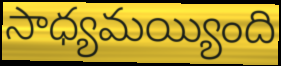
సాధ్యమయ్యింది